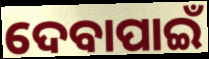
ଦେବାପାଇଁ